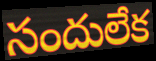
సందులేక